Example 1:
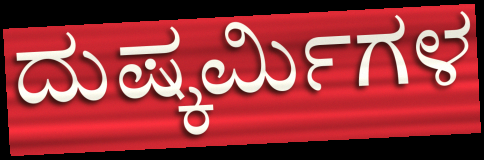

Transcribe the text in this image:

ದುಷ್ಕರ್ಮಿಗಳ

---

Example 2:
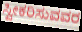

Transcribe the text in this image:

ಸ್ವೀಕರಿಸುವವರ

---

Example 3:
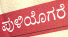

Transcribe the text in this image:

ಪುಳಿಯೊಗರೆ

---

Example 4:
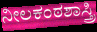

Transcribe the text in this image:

ನೀಲಕಂಠಶಾಸ್ತ್ರಿ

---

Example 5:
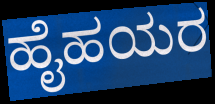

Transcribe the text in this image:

ಹೈಹಯರ